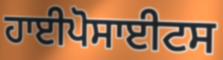
ਹਾਈਪੋਸਾਈਟਸ